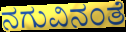
ನಗುವಿನಂತೆ